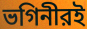
ভগিনীরই